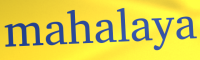
mahalaya